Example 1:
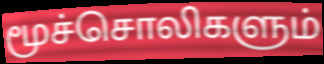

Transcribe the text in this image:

மூச்சொலிகளும்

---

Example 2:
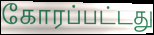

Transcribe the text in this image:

கோரப்பட்டது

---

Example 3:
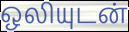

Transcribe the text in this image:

ஒலியுடன்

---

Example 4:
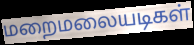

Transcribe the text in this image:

மறைமலையடிகள்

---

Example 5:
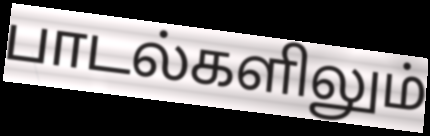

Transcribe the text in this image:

பாடல்களிலும்